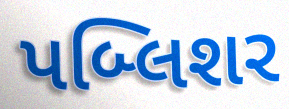
પબ્લિશર